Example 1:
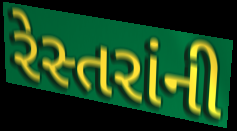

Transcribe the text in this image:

રેસ્તરાંની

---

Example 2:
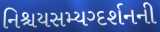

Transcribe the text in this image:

નિશ્ચયસમ્યગ્દર્શનની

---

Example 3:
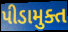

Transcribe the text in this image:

પીડામુક્ત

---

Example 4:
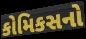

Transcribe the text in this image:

કોમિકસનો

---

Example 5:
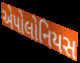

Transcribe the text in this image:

એપોલોનિયસ